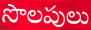
సొలపులు